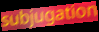
subjugation